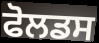
ਫੋਲਡਸ